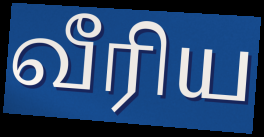
வீரிய